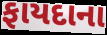
ફાયદાના